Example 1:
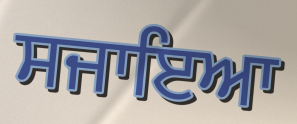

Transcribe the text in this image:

ਸਜਾਇਆ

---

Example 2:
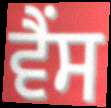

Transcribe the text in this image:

ਵੈਂਸ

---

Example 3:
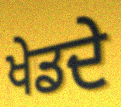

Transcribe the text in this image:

ਖੇਡਦੇ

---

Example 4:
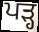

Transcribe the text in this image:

ਪੜ੍ਹ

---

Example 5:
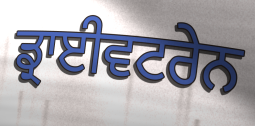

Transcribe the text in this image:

ਡ੍ਰਾਈਵਟਰੇਨ